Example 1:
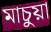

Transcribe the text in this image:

মাচুয়া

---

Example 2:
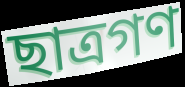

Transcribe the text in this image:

ছাত্রগণ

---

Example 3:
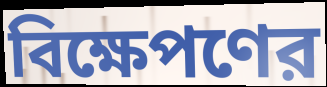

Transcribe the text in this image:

বিক্ষেপণের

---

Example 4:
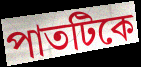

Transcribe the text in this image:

পাতটিকে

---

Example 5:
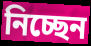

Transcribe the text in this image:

নিচ্ছেন